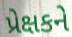
પ્રેક્ષકને